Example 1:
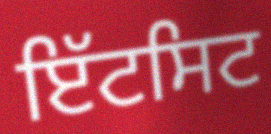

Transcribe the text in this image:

ਇੱਟਸਿਟ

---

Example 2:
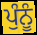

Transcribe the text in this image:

ਪੁੰਨੂੰ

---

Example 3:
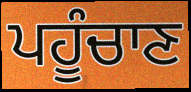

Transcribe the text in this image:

ਪਹੂੰਚਾਣ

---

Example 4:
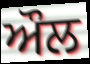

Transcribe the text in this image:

ਔਲ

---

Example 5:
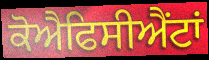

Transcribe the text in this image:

ਕੋਐਫਿਸੀਐਂਟਾਂ